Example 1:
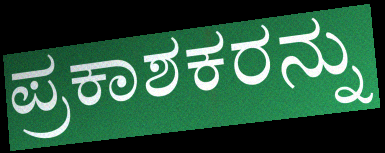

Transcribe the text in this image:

ಪ್ರಕಾಶಕರನ್ನು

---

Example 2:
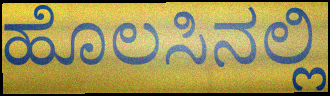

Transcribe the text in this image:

ಹೊಲಸಿನಲ್ಲಿ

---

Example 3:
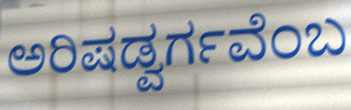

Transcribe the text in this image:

ಅರಿಷಡ್ವರ್ಗವೆಂಬ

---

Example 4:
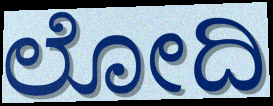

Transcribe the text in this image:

ಲೋದಿ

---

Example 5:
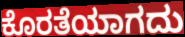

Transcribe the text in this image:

ಕೊರತೆಯಾಗದು